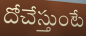
దోచేస్తుంటే